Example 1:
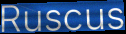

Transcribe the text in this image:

Ruscus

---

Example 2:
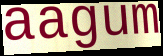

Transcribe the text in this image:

aagum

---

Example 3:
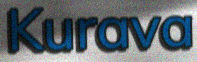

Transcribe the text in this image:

Kurava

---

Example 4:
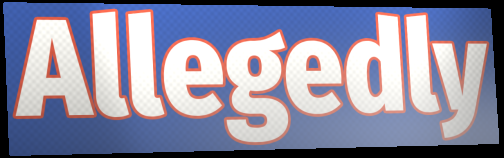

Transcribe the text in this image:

Allegedly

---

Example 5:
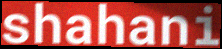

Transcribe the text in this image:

shahani